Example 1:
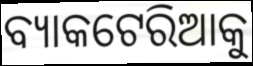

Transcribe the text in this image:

ବ୍ୟାକଟେରିଆକୁ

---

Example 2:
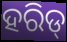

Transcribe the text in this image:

ହରିଡ୍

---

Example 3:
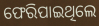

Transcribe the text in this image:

ଫେରିପାଇଥିଲେ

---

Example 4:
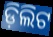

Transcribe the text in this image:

ଡ଼ିଲିଟ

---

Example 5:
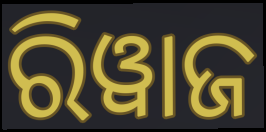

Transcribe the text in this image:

ରିୱାଜ